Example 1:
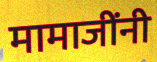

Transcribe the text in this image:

मामाजींनी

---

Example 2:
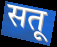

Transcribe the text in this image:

सतू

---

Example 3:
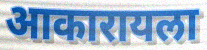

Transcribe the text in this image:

आकारायला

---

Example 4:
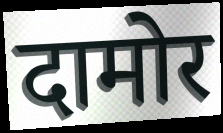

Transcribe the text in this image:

दामोर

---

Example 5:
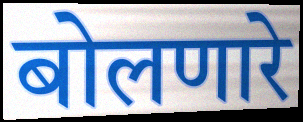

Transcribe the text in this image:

बोलणारे